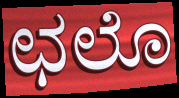
ಛಲೊ